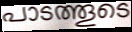
പാടത്തൂടെ